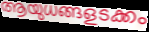
ആയുധങ്ങളടക്കം